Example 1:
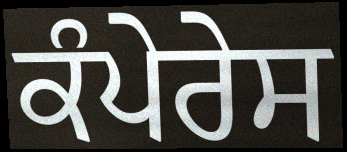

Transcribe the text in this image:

ਕੰਪੇਰੇਸ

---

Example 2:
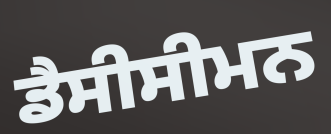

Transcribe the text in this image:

ਡੈਸੀਸੀਮਨ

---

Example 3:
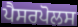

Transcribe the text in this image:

ਪੈਸਰਪੋਲਸ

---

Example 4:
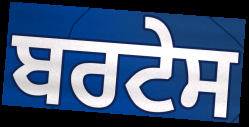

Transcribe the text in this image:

ਬਰਟੇਸ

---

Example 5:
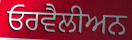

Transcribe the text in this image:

ਓਰਵੈਲੀਅਨ